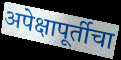
अपेक्षापूर्तीचा